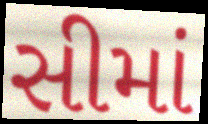
સીમાં